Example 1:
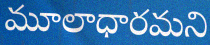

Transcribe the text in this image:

మూలాధారమని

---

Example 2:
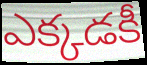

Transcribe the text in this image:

ఎక్కడకీ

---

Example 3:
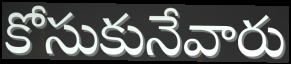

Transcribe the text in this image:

కోసుకునేవారు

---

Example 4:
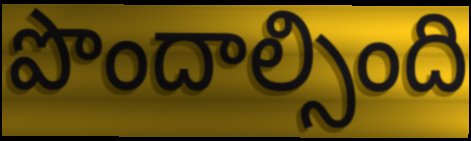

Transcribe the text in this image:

పొందాల్సింది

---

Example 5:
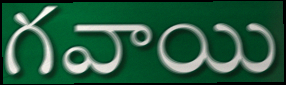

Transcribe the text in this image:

గవాయి